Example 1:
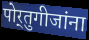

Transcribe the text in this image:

पोर्तुगीजांना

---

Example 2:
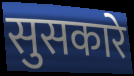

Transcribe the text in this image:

सुसकारे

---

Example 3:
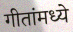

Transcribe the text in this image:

गीतांमध्ये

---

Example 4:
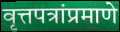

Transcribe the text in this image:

वृत्तपत्रांप्रमाणे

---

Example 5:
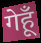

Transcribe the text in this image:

गेहूँ